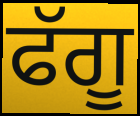
ਫੱਗੂ